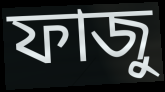
ফাজু